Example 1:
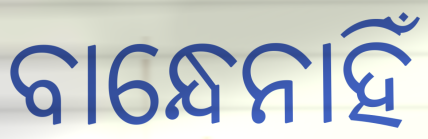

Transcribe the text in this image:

ବାନ୍ଧେନାହିଁ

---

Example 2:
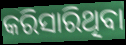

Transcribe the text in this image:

କରିସାରିଥିବା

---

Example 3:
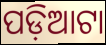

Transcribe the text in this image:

ପଡ଼ିଆଟା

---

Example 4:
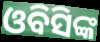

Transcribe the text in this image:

ଓବିସିଙ୍କ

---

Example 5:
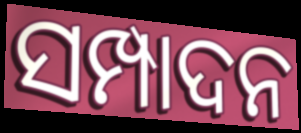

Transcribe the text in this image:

ସମ୍ପାଦନ